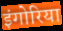
इंगोरिया